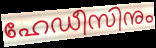
ഹേഡീസിനും